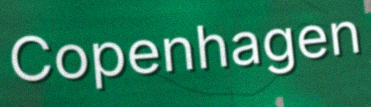
Copenhagen